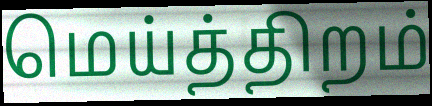
மெய்த்திறம்